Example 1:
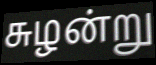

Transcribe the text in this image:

சுழன்று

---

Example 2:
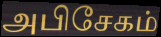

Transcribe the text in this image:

அபிசேகம்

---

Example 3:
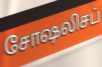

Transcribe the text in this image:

சோஷலிசப்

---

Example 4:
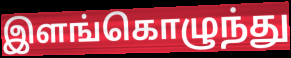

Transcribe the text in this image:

இளங்கொழுந்து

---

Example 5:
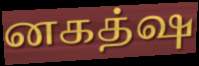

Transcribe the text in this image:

னகத்ஷ